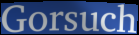
Gorsuch